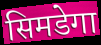
सिमडेगा